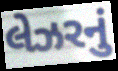
લેઝરનું